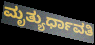
ಮೃತ್ಯುರ್ಧಾವತಿ